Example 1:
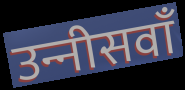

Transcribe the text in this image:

उन्‍नीसवाँ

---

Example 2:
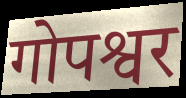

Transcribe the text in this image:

गोपश्वर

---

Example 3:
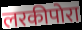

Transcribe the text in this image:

लरकीपोरा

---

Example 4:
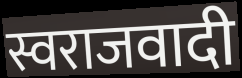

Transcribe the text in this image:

स्वराजवादी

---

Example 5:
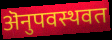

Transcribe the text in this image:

ऄनुपवस्थवत